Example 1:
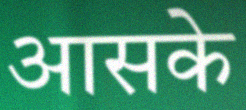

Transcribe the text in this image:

आसके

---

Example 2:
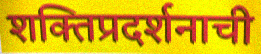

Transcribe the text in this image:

शक्तिप्रदर्शनाची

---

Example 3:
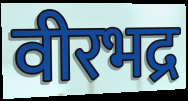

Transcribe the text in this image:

वीरभद्र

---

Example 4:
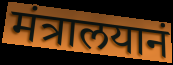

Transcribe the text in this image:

मंत्रालयानं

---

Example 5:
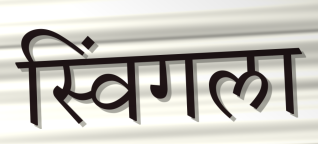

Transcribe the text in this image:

स्विंगला